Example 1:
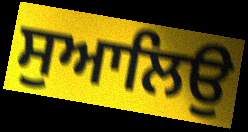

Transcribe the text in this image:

ਸੁਆਲਿਉ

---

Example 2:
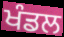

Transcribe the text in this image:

ਖੰਡਲ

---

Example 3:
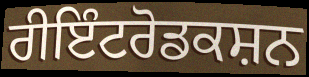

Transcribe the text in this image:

ਰੀਇੰਟਰੋਡਕਸ਼ਨ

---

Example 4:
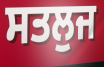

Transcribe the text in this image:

ਸਤਲੁਜ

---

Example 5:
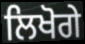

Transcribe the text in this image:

ਲਿਖੋਗੇ